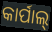
କାର୍ପାଲ୍